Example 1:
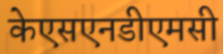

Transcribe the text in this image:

केएसएनडीएमसी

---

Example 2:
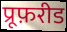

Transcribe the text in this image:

प्रूफ़रीड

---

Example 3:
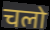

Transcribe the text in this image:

चलो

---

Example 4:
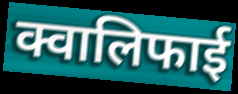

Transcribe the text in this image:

क्वालिफाई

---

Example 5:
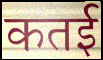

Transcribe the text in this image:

कतई